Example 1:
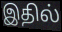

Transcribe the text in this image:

இதில்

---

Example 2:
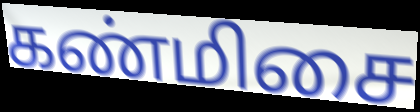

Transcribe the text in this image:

கண்மிசை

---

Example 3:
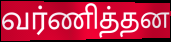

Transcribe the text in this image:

வர்ணித்தன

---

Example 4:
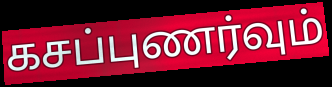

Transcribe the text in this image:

கசப்புணர்வும்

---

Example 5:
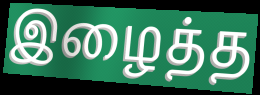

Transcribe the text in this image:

இழைத்த